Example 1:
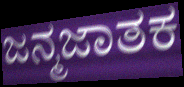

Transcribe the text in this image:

ಜನ್ಮಜಾತಕ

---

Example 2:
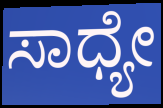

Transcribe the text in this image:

ಸಾಧ್ಯೇ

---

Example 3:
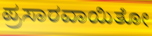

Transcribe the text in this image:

ಪ್ರಸಾರವಾಯಿತೋ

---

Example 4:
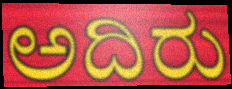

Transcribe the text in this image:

ಅದಿರು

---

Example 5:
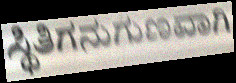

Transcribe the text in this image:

ಸ್ಥಿತಿಗನುಗುಣವಾಗಿ